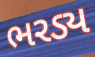
ભરડ્ય